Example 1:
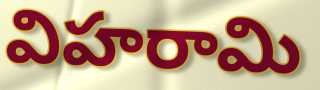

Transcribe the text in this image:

విహరామి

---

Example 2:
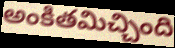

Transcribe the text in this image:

అంకితమిచ్చింది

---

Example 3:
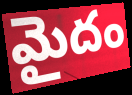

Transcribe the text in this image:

మైదం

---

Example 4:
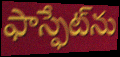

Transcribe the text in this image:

ఫాస్ఫేట్‌ను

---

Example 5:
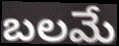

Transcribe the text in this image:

బలమే